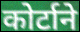
कोर्टाने